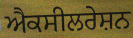
ਐਕਸੀਲਰੇਸ਼ਨ